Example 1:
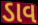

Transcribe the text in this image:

ડાવ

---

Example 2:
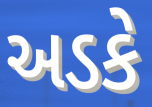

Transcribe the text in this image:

અડકે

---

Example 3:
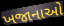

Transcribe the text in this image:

ખજાનાઓ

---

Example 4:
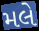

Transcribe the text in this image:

મલે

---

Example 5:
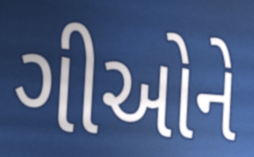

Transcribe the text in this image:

ગીઓને